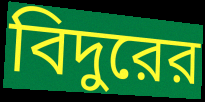
বিদুরের